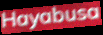
Hayabusa